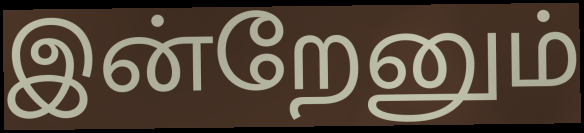
இன்றேனும்